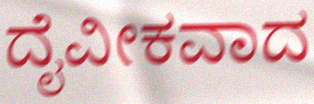
ದೈವೀಕವಾದ